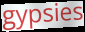
gypsies